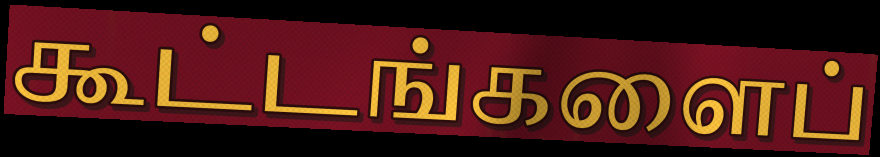
கூட்டங்களைப்